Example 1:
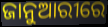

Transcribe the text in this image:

ଜାନୁଆରୀରେ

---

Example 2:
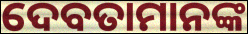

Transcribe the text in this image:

ଦେବତାମାନଙ୍କ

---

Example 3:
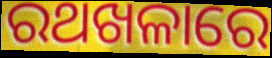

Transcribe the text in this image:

ରଥଖଳାରେ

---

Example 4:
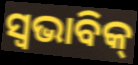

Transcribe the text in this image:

ସ୍ୱଭାବିକ୍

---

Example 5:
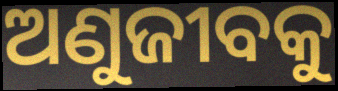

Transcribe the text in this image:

ଅଣୁଜୀବକୁ